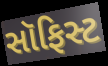
સૉફિસ્ટ